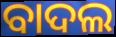
ବାଦଲ